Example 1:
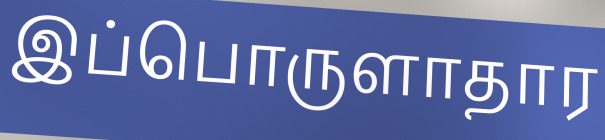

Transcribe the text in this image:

இப்பொருளாதார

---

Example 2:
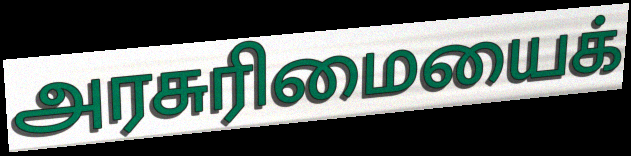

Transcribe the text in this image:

அரசுரிமையைக்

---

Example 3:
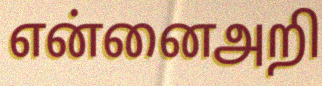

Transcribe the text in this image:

என்னைஅறி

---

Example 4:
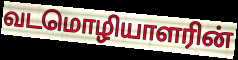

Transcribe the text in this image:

வடமொழியாளரின்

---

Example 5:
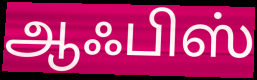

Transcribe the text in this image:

ஆஃபிஸ்